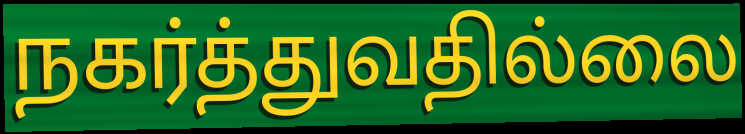
நகர்த்துவதில்லை